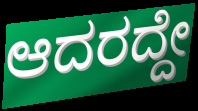
ಆದರದ್ದೇ